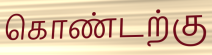
கொண்டற்கு